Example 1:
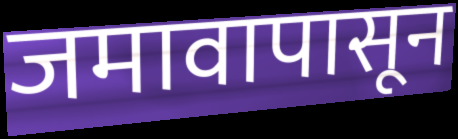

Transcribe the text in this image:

जमावापासून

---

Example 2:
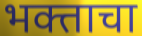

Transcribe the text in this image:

भक्ताचा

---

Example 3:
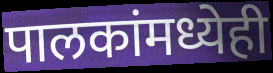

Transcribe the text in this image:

पालकांमध्येही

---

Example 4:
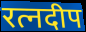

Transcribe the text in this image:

रत्नदीप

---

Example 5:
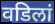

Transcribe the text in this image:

वडिलां